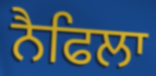
ਨੈਫਿਲਾ